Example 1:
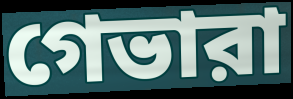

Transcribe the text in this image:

গেভারা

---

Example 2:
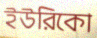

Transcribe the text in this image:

ইউরিকো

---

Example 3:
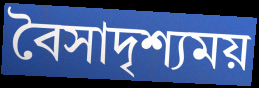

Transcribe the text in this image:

বৈসাদৃশ্যময়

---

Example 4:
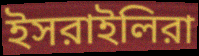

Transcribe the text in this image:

ইসরাইলিরা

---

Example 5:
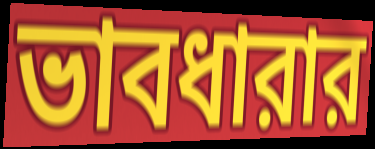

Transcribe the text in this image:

ভাবধারার